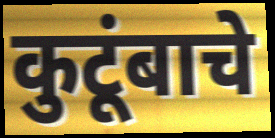
कुटूंबाचे